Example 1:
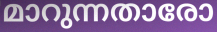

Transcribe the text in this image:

മാറുന്നതാരോ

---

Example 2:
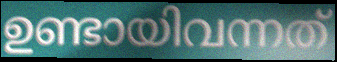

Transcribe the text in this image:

ഉണ്ടായിവന്നത്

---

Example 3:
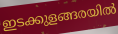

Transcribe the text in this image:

ഇടക്കുളങ്ങരയിൽ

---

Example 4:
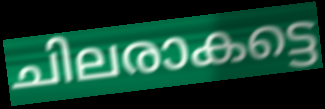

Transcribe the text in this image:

ചിലരാകട്ടെ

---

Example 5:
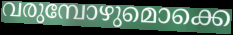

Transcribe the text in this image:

വരുമ്പോഴുമൊക്കെ